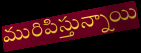
మురిపిస్తున్నాయి